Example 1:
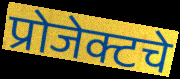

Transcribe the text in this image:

प्रोजेक्टचे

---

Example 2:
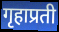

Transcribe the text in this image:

गृहाप्रती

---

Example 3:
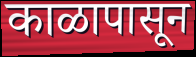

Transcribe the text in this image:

काळापासून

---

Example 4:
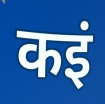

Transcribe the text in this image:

कइं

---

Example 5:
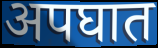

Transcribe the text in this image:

अपघात